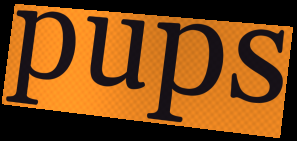
pups